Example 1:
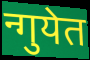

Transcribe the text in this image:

न्गुयेत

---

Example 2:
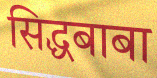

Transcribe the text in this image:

सिद्धबाबा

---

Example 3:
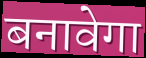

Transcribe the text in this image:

बनावेगा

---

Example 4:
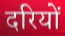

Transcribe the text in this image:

दरियों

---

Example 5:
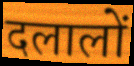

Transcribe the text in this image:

दलालों